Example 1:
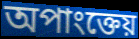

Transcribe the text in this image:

অপাংক্তেয়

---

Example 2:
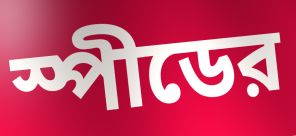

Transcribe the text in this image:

স্পীডের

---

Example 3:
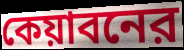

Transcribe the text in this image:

কেয়াবনের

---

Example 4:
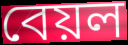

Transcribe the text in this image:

বেয়ল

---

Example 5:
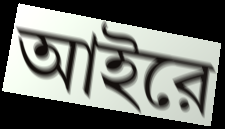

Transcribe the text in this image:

আইরে